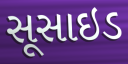
સૂસાઇડ